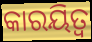
କାରୟିତ୍ୱ